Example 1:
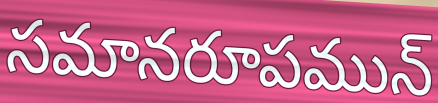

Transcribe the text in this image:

సమానరూపమున్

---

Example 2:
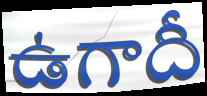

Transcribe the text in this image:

ఉగాదీ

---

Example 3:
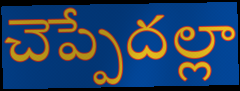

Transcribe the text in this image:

చెప్పేదల్లా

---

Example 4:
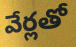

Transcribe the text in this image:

వేర్లతో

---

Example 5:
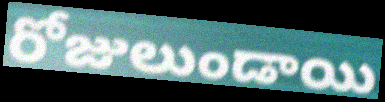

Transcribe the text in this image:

రోజులుండాయి